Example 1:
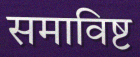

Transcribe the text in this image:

समाविष्ट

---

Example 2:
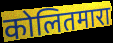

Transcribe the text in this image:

कोलितमारा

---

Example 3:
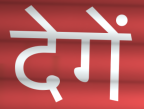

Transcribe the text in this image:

देगें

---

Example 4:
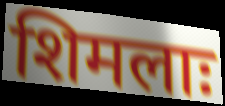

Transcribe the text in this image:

शिमलाः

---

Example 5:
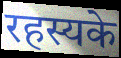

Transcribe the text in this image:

रहस्यके